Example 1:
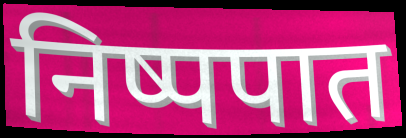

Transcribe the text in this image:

निष्पपात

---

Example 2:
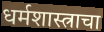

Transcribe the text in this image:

धर्मशास्त्राचा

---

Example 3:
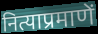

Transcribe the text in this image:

नित्याप्रमाणें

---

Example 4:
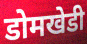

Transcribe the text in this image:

डोमखेडी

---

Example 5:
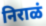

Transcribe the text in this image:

निराळं